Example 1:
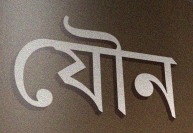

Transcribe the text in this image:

যৌন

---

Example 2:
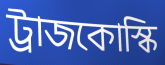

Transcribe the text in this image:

ট্রাজকোস্কি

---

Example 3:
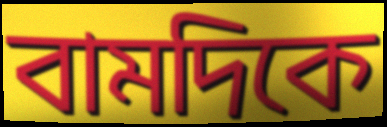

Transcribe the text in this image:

বামদিকে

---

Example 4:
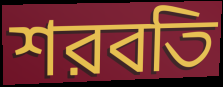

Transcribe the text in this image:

শরবতি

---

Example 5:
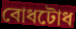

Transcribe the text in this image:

বোধটোধ